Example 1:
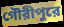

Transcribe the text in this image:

গৌরীপুরে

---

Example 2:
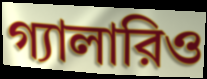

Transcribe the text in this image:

গ্যালারিও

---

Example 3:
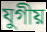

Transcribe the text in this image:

যুগীয়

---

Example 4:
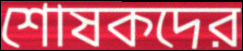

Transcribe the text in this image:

শোষকদের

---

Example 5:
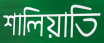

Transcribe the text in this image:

শালিয়াতি